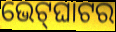
ଭେଟ୍‌ଘାଟର